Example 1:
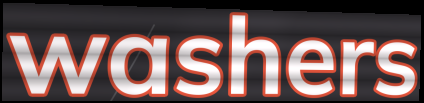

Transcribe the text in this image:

washers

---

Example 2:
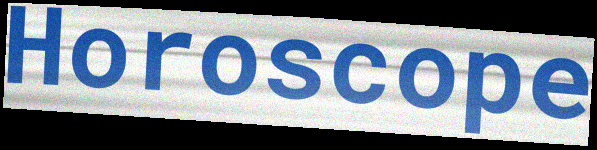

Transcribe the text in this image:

Horoscope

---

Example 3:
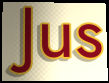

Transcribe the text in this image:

Jus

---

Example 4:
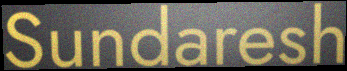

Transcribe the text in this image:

Sundaresh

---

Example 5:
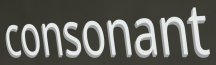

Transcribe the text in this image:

consonant